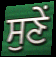
ਸੁਣੇਂ